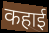
कहाई